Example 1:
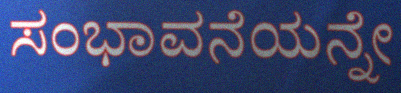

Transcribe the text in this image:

ಸಂಭಾವನೆಯನ್ನೇ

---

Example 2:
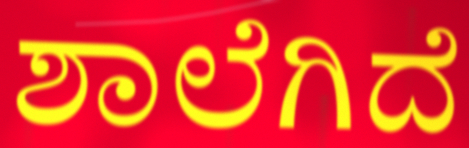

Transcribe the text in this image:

ಶಾಲೆಗಿದೆ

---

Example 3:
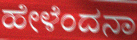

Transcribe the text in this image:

ಹೇಳೆಂದನಾ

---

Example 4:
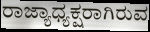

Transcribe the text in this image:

ರಾಜ್ಯಾಧ್ಯಕ್ಷರಾಗಿರುವ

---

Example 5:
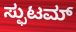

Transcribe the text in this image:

ಸ್ಫುಟಮ್